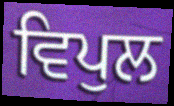
ਵਿਪੁਲ